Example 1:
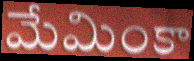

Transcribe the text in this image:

మేమింకా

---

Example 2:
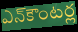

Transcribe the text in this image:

ఎన్‌కౌంటర్ల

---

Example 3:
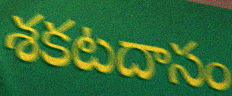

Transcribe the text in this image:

శకటదాసం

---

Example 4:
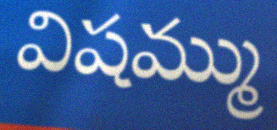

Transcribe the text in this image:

విషమ్ము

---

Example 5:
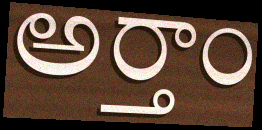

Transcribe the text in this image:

అర్తాం